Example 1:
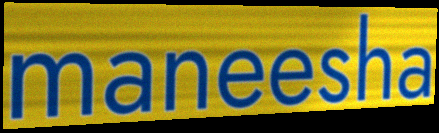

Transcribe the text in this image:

maneesha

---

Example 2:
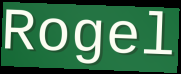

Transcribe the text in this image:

Rogel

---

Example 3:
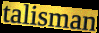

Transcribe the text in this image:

talisman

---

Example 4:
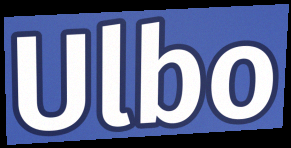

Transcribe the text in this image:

Ulbo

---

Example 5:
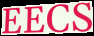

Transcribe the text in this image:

EECS